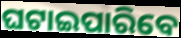
ଘଟାଇପାରିବେ